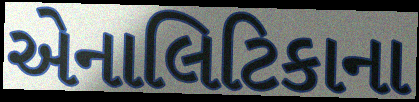
એનાલિટિકાના